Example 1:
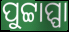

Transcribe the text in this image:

ପୁଟ୍ଟାପ୍ପା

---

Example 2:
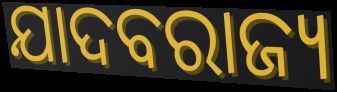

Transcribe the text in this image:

ଯାଦବରାଜ୍ୟ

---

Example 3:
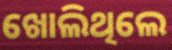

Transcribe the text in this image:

ଖୋଲିଥିଲେ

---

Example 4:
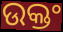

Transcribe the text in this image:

ଉକ୍ତଂ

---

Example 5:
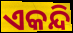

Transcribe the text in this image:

ଏକନ୍ଦି